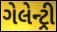
ગેલેન્ટ્રી